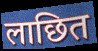
लाछित